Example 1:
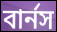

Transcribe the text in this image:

বার্নস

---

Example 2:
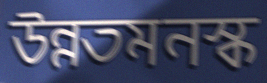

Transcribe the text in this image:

উন্নতমনস্ক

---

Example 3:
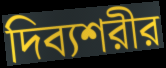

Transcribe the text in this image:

দিব্যশরীর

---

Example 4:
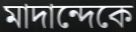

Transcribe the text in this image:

মাদান্দেকে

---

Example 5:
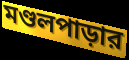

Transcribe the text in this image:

মণ্ডলপাড়ার